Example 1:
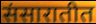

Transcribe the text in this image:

संसारातीत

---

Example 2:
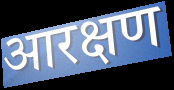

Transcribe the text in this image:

आरक्षण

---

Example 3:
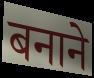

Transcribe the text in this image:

बनाने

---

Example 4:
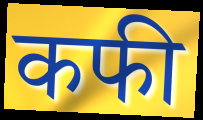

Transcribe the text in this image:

कफी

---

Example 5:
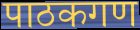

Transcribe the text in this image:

पाठकगण